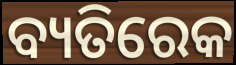
ବ୍ୟତିରେକ